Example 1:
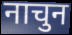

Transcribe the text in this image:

नाचुन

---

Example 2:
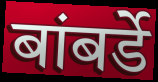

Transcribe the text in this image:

बांबर्डे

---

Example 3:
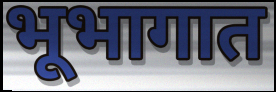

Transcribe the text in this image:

भूभागात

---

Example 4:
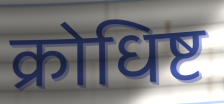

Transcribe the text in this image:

क्रोधिष्ट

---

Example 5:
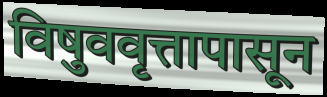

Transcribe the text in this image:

विषुववृत्तापासून